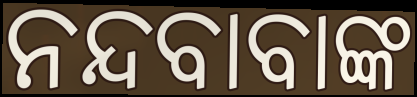
ନନ୍ଦବାବାଙ୍କ